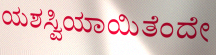
ಯಶಸ್ವಿಯಾಯಿತೆಂದೇ